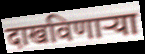
दाखविणाऱ्या